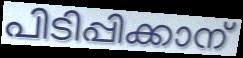
പിടിപ്പിക്കാന്